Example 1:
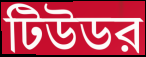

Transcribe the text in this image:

টিউডর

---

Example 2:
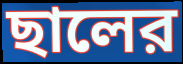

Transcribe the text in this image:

ছালের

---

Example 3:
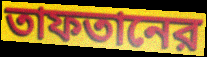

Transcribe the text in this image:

তাফতানের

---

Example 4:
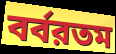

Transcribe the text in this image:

বর্বরতম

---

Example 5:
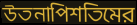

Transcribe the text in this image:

উতনাপিশতিমের